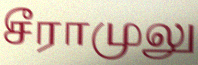
சீராமுலு